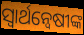
ସ୍ୱାର୍ଥନ୍ୱେଷୀଙ୍କ